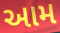
આમ